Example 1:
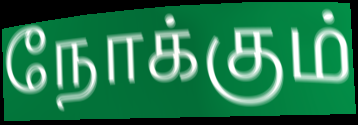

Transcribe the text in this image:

நோக்கும்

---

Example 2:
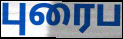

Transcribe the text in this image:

புரைப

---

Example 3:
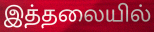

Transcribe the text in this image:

இத்தலையில்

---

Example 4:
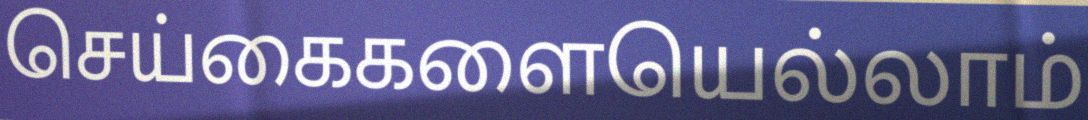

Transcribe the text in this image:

செய்கைகளையெல்லாம்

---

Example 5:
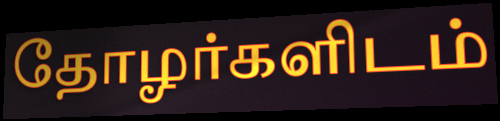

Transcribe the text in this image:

தோழர்களிடம்